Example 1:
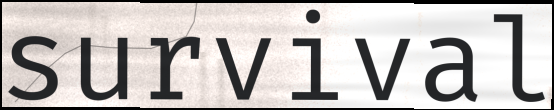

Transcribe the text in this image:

survival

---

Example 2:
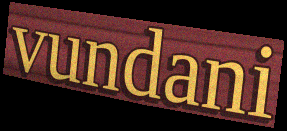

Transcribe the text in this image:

vundani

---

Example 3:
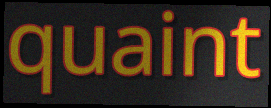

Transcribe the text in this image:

quaint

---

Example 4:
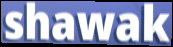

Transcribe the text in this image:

shawak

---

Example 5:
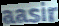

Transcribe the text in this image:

aasir